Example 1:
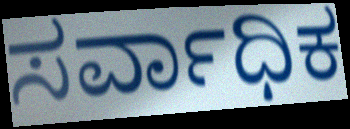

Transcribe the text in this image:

ಸರ್ವಾಧಿಕ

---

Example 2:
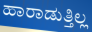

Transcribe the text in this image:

ಹಾರಾಡುತ್ತಿಲ್ಲ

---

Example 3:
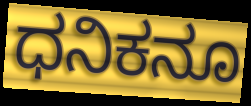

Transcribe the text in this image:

ಧನಿಕನೂ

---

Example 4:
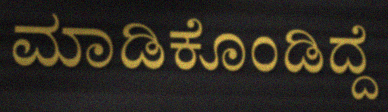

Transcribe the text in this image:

ಮಾಡಿಕೊಂಡಿದ್ದೆ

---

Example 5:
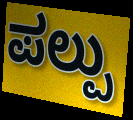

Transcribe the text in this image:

ಪಲ್ಪು